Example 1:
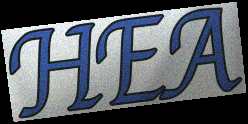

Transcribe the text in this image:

HEA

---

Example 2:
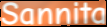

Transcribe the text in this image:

Sannita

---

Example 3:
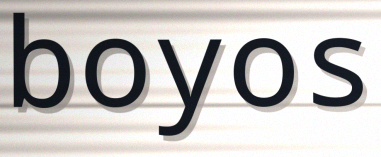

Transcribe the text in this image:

boyos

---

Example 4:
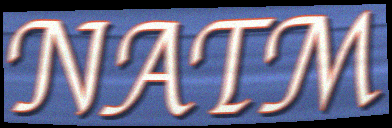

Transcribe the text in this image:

NATM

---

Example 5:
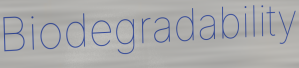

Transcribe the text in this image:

Biodegradability